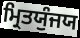
ਮ੍ਰਿਤਯੁੰਜਯ